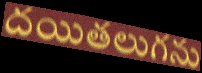
దయితలుగను